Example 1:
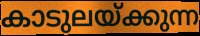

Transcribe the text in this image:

കാടുലയ്ക്കുന്ന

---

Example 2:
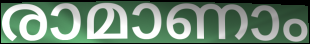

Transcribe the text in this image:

രാമാണാം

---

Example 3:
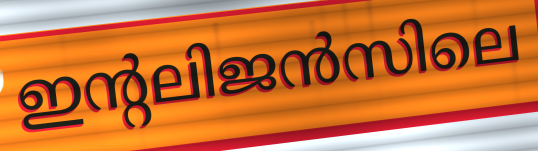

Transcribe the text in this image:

ഇന്റലിജൻസിലെ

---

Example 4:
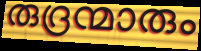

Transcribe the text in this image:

രുദ്രന്മാരും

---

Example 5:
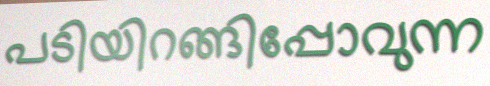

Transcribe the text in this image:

പടിയിറങ്ങിപ്പോവുന്ന